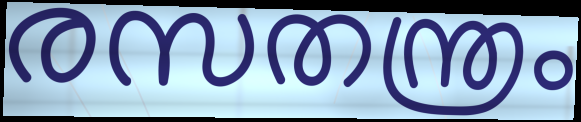
രസതന്ത്രം